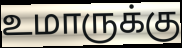
உமாருக்கு